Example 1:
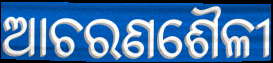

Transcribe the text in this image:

ଆଚରଣଶୈଳୀ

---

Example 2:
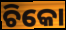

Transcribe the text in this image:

ଚିକୋ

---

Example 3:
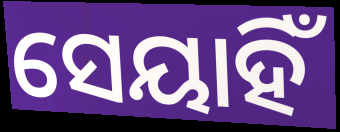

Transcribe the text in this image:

ସେୟାହିଁ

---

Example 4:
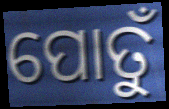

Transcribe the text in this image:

ପୋତୁଁ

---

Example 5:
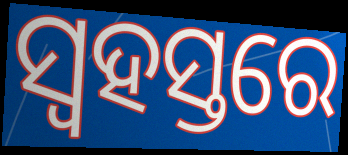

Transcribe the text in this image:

ସ୍ୱହସ୍ତରେ